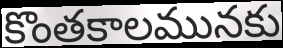
కొంతకాలమునకు